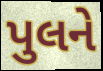
પુલને